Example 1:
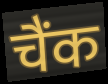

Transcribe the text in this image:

चैंक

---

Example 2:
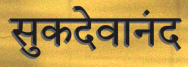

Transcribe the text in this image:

सुकदेवानंद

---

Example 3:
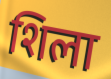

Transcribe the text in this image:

शिला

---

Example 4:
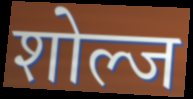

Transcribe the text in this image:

शोल्ज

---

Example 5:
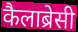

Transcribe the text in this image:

कैलाब्रेसी